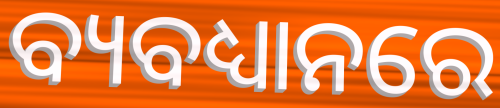
ବ୍ୟବଧ୍ୟାନରେ